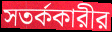
সতর্ককারীর